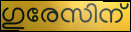
ഗുരേസിന്